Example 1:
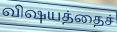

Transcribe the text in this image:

விஷயத்தைச்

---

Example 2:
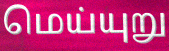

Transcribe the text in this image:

மெய்யுறு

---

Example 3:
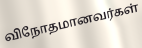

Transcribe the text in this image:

விநோதமானவர்கள்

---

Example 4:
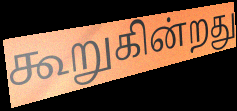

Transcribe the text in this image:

கூறுகின்றது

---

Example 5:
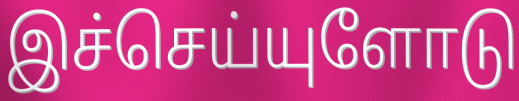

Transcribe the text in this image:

இச்செய்யுளோடு